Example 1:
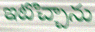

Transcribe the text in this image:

ఇటొచ్చాను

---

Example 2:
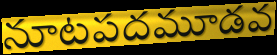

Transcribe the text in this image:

నూటపదమూడవ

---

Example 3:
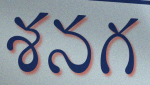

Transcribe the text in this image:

శనగ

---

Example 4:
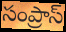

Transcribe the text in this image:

సంప్రాస్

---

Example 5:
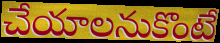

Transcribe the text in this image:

చేయాలనుకొంటే